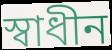
স্ৱাধীন